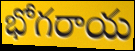
భోగరాయ